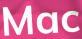
Mac